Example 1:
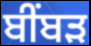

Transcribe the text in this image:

ਬੀੰਬੜ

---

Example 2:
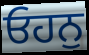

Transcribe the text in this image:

ਓਹਨੁ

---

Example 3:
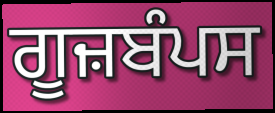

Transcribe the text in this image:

ਗੂਜ਼ਬੰਪਸ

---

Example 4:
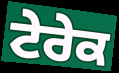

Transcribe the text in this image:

ਟੇਰੇਕ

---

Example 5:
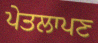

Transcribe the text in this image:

ਪੇਤਲਾਪਣ